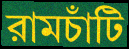
রামচাঁটি